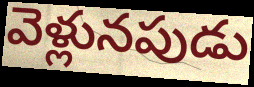
వెళ్లునపుడు